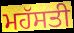
ਮਹੱਸਤੀ